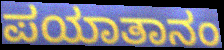
ಪಯಾತಾನಂ